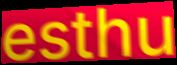
esthu